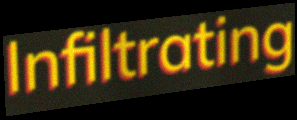
Infiltrating